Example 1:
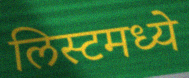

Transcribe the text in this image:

लिस्टमध्ये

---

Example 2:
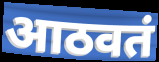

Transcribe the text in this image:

आठवतं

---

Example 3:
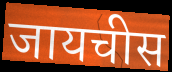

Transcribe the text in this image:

जायचीस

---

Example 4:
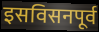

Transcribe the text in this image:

इसविसनपूर्व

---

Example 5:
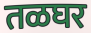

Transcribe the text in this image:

तळघर